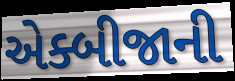
એક્બીજાની